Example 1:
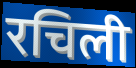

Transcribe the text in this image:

रचिली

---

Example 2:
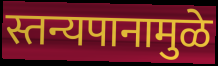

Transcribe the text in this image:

स्तन्यपानामुळे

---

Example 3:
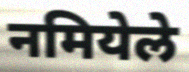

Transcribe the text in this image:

नमियेले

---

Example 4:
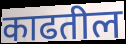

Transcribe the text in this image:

काढतील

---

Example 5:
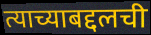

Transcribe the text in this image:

त्याच्याबद्दलची